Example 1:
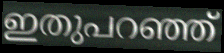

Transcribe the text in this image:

ഇതുപറഞ്ഞ്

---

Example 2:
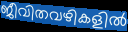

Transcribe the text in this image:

ജീവിതവഴികളിൽ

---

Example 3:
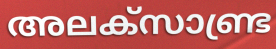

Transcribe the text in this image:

അലക്സാണ്ട്ര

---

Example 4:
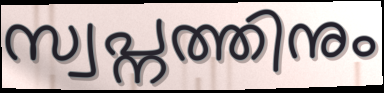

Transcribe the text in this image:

സ്വപ്നത്തിനും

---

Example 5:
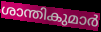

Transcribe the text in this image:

ശാന്തികുമാർ